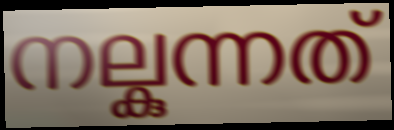
നല്കുന്നത്